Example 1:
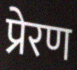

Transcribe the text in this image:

प्रेरण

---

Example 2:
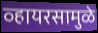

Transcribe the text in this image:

व्हायरसामुळे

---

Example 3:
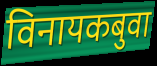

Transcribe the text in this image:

विनायकबुवा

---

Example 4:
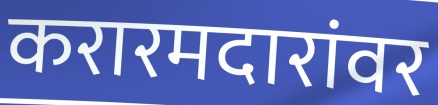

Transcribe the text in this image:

करारमदारांवर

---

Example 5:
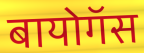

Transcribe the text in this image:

बायोगॅस